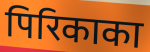
पिरिकाका